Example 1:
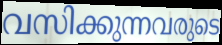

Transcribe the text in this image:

വസിക്കുന്നവരുടെ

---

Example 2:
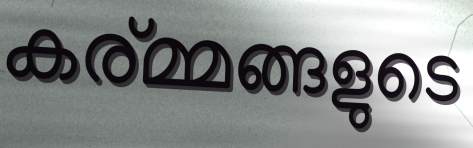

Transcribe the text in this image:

കര്മ്മങ്ങളുടെ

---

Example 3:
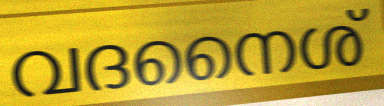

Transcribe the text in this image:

വദനൈശ്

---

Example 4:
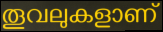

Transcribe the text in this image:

തൂവലുകളാണ്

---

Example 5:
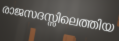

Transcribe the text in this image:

രാജസദസ്സിലെത്തിയ